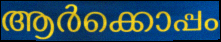
ആർക്കൊപ്പം